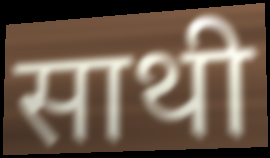
साथी